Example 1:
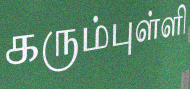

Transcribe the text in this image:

கரும்புள்ளி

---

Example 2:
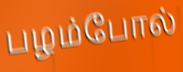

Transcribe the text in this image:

பழம்போல்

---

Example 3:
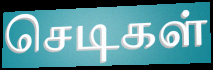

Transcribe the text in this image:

செடிகள்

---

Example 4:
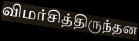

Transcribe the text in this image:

விமர்சித்திருந்தன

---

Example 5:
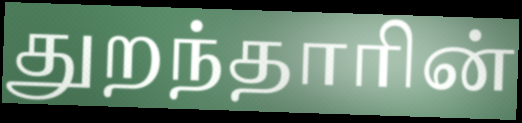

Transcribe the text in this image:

துறந்தாரின்